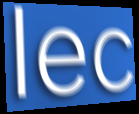
lec